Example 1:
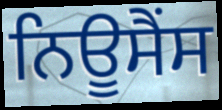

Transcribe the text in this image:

ਨਿਊਸੈਂਸ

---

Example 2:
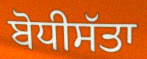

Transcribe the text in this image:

ਬੋਧੀਸੱਤਾ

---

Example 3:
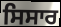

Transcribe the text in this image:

ਸਿਸਾਰ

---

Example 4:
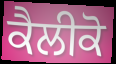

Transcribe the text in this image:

ਕੈਲੀਕੋ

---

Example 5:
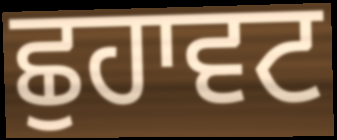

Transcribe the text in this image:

ਛੁਹਾਵਟ